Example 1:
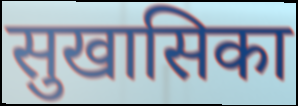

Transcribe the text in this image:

सुखासिका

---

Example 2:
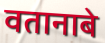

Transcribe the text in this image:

वतानाबे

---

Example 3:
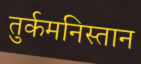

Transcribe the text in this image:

तुर्कमनिस्तान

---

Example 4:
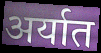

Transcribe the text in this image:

अर्यात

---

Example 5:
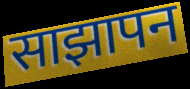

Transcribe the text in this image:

साझापन